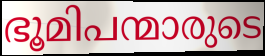
ഭൂമിപന്മാരുടെ